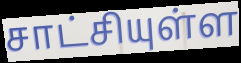
சாட்சியுள்ள